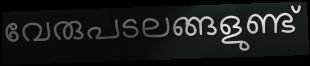
വേരുപടലങ്ങളുണ്ട്